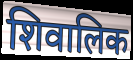
शिवालिक